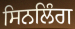
ਸਿਨਲਿੰਗ